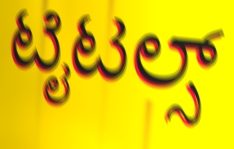
ಟೈಟಲ್ಸ್